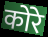
कोरे